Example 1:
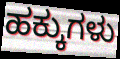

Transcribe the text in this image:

ಹಕ್ಕುಗಳು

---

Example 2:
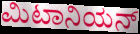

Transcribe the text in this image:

ಮಿಟಾನಿಯನ್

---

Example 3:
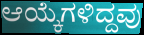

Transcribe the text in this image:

ಆಯ್ಕೆಗಳಿದ್ದವು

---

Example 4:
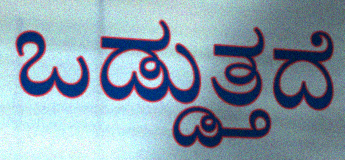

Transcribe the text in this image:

ಒಡ್ಡುತ್ತದೆ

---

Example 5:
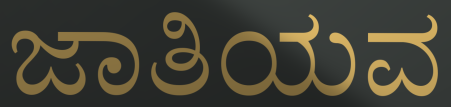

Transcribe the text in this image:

ಜಾತಿಯವ